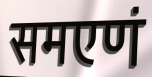
समएणं